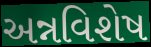
અન્નવિશેષ